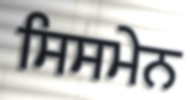
ਸਿਸਮੇਨ